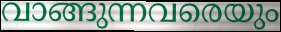
വാങ്ങുന്നവരെയും